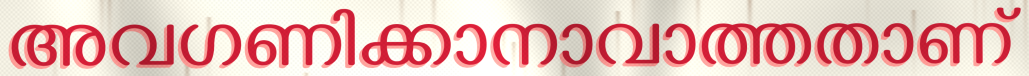
അവഗണിക്കാനാവാത്തതാണ്